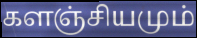
களஞ்சியமும்